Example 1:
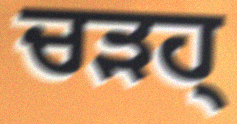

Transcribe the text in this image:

ਚੜਹ੍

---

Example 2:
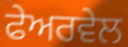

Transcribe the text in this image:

ਫੇਅਰਵੇਲ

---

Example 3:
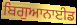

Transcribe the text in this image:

ਬਿਗੁਆਨਾਈਡ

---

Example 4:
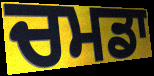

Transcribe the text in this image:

ਚਮਡਾ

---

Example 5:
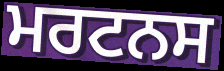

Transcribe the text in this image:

ਮਰਟਨਸ